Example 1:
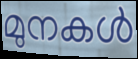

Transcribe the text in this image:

മുനകൾ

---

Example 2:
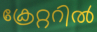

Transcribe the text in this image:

ക്രേറ്ററിൽ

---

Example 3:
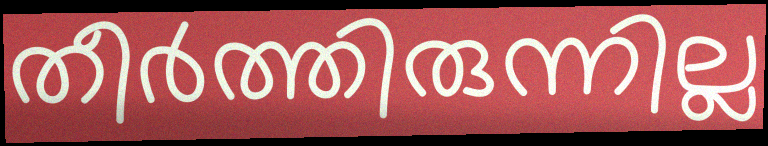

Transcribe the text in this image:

തീർത്തിരുന്നില്ല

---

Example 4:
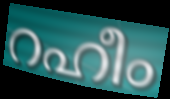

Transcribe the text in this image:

റഹീം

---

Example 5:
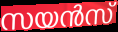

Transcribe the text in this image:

സയൻസ്